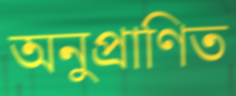
অনুপ্ৰাণিত